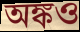
অঙ্কও